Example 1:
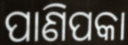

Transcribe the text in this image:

ପାଣିପକା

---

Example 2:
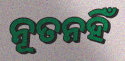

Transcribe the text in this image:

ନୂତନହିଁ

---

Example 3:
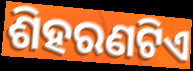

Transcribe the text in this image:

ଶିହରଣଟିଏ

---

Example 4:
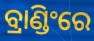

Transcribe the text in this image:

ବ୍ରାଣ୍ଡିଂରେ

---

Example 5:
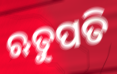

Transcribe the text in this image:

ଋତୁପତି